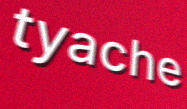
tyache